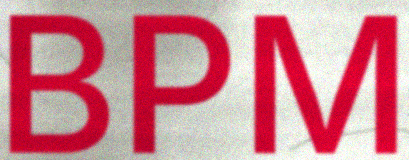
BPM